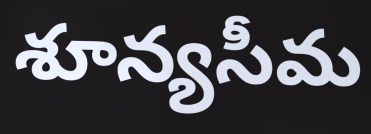
శూన్యసీమ